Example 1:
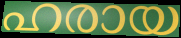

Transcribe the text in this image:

ഹരായ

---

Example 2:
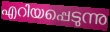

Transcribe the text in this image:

എറിയപ്പെടുന്നു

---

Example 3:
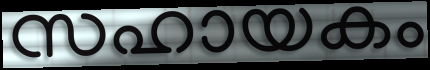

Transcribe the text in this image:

സഹായകം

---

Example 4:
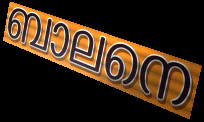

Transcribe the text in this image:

ബാലനെ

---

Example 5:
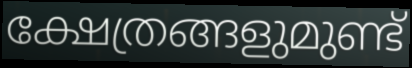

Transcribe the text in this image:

ക്ഷേത്രങ്ങളുമുണ്ട്